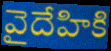
వైదేహికి